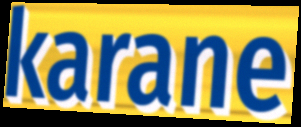
karane